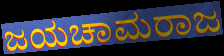
ಜಯಚಾಮರಾಜ